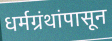
धर्मग्रंथांपासून